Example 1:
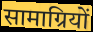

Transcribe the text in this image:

सामाग्रियों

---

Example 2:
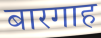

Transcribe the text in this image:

बारगाह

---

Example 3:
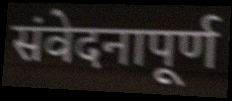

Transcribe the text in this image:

संवेदनापूर्ण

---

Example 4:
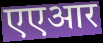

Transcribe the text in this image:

एएआर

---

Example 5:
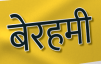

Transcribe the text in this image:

बेरहमी